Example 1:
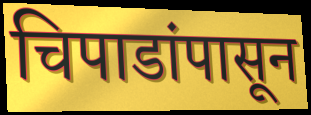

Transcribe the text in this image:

चिपाडांपासून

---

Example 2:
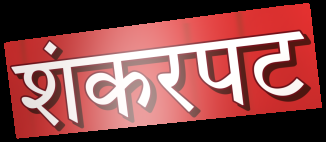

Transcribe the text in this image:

शंकरपट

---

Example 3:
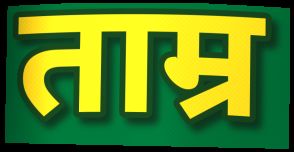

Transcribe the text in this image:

ताम्र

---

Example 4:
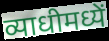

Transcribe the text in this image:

व्याधीमध्यें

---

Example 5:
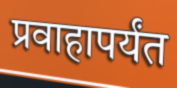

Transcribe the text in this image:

प्रवाहापर्यंत